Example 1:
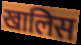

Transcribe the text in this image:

खालिस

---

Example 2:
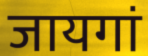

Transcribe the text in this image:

जायगां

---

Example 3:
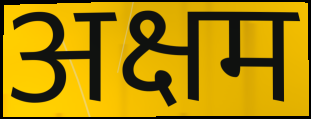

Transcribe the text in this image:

अक्षम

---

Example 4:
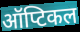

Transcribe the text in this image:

ऑप्टिकल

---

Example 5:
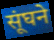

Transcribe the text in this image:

सूंघने